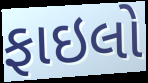
ફાઇલો